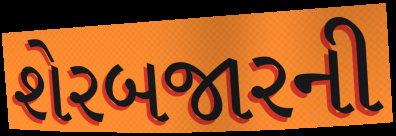
શેરબજારની